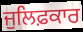
ਜੁਲਿਫ਼ਕਾਰ